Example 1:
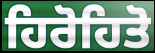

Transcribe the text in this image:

ਹਿਰੋਹਿਤੋ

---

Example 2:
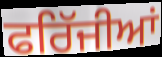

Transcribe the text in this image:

ਫਰਿੱਜੀਆਂ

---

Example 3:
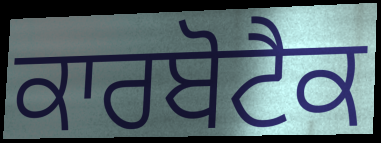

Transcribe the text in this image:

ਕਾਰਬੋਟੈਕ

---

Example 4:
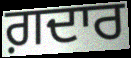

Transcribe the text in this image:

ਗ਼ਦਾਰ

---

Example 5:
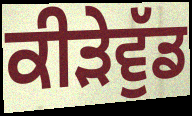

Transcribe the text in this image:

ਕੀੜੇਵੁੱਡ